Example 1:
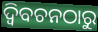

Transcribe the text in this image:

ଦ୍ବିବଚନଠାରୁ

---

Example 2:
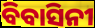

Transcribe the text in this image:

ବିବାସିନୀ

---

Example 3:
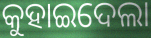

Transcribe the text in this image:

କୁହାଇଦେଲା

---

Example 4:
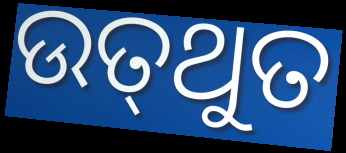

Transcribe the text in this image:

ଉତ୍‌ଥୁତ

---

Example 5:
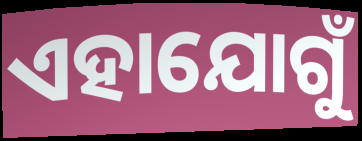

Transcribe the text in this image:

ଏହାଯୋଗୁଁ